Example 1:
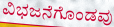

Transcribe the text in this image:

ವಿಭಜನೆಗೊಂಡವು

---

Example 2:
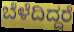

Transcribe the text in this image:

ಬೆಳೆದಿದ್ದರೆ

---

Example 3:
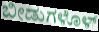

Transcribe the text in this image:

ಬೀಡುಗಳೊಳ್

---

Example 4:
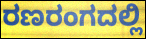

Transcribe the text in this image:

ರಣರಂಗದಲ್ಲಿ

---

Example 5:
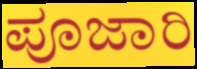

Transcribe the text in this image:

ಪೂಜಾರಿ